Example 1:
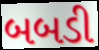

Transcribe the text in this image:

બબડી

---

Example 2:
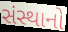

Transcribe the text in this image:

સંસ્થાનો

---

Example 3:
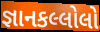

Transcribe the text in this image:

જ્ઞાનકલ્લોલો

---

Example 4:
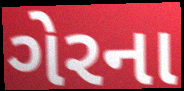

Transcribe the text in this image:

ગેરના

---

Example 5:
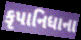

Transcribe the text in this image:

કૃપાનિધાના